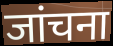
जांचना